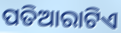
ପତିଆରାଟିଏ